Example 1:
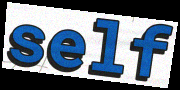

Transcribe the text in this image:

self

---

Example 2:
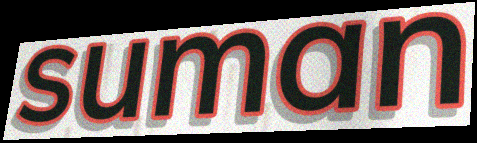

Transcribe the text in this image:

suman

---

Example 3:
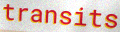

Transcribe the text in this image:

transits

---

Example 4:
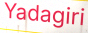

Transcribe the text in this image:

Yadagiri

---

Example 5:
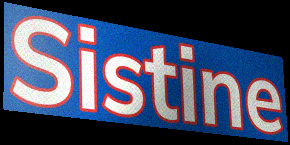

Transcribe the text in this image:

Sistine